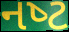
નષ્‍ટ